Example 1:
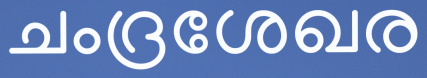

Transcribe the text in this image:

ചംദ്രശേഖര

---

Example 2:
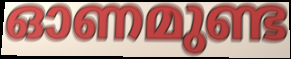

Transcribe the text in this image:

ഓണമുണ്ട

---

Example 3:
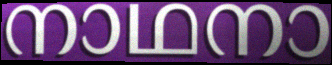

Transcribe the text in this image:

നാഥനാ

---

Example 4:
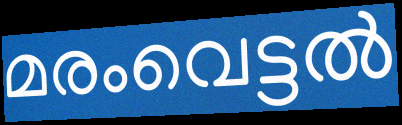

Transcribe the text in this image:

മരംവെട്ടൽ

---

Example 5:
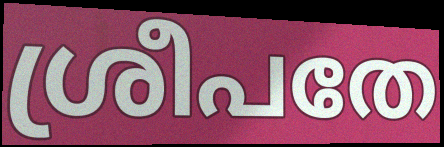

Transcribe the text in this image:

ശ്രീപതേ